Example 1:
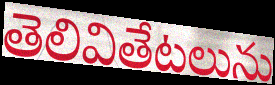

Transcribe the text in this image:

తెలివితేటలును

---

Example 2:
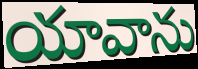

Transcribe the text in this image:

యావాను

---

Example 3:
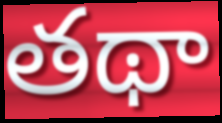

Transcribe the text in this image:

తథా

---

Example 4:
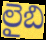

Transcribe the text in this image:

లైబి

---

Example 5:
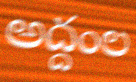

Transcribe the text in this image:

అద్దంల